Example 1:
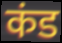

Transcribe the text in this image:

कंड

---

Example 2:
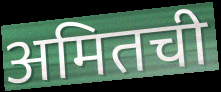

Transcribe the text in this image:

अमितची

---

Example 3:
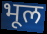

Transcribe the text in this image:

भूल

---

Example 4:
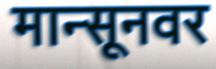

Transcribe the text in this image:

मान्सूनवर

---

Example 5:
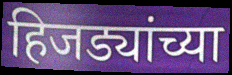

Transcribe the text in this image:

हिजड्यांच्या